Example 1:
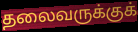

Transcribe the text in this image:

தலைவருக்குக்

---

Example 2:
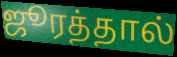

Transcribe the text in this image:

ஜூரத்தால்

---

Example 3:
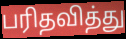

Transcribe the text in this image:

பரிதவித்து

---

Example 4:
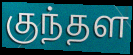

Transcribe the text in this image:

குந்தள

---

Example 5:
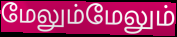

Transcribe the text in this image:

மேலும்மேலும்